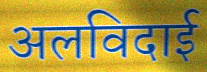
अलविदाई